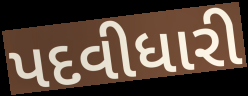
પદવીધારી